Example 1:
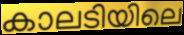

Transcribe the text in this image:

കാലടിയിലെ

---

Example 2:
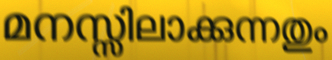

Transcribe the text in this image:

മനസ്സിലാക്കുന്നതും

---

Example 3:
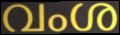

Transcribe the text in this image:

വംശ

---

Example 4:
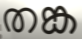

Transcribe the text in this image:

തങ്ക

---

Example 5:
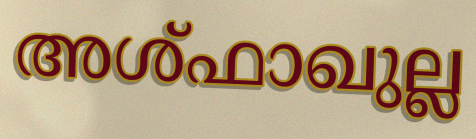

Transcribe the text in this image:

അശ്ഫാഖുല്ല